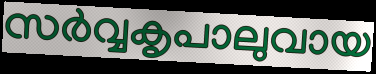
സർവ്വകൃപാലുവായ